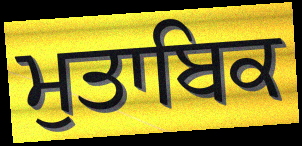
ਮੁਤਾਬਿਕ